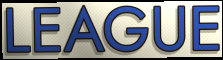
LEAGUE